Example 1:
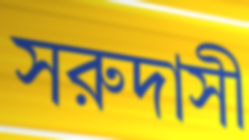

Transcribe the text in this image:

সরুদাসী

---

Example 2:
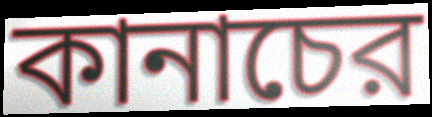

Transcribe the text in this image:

কানাচের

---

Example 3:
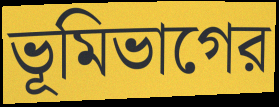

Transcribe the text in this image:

ভূমিভাগের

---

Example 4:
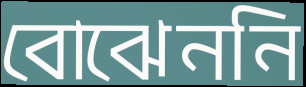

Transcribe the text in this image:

বোঝেননি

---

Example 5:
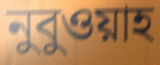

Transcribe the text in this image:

নুবুওয়াহ